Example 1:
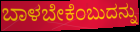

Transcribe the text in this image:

ಬಾಳಬೇಕೆಂಬುದನ್ನು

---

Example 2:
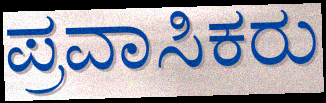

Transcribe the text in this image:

ಪ್ರವಾಸಿಕರು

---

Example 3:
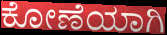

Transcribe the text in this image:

ಕೋಣೆಯಾಗಿ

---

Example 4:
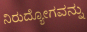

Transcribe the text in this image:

ನಿರುದ್ಯೋಗವನ್ನು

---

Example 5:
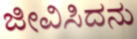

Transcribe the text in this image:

ಜೀವಿಸಿದನು